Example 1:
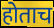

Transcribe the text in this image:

होताच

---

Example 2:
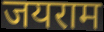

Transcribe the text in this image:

जयराम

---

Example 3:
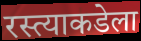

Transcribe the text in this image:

रस्त्याकडेला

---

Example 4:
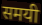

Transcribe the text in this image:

समयी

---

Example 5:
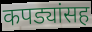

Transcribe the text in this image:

कपड्यांसह